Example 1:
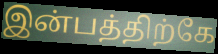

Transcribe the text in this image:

இன்பத்திற்கே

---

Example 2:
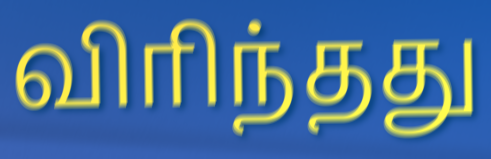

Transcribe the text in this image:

விரிந்தது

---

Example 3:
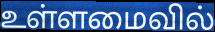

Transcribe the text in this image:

உள்ளமைவில்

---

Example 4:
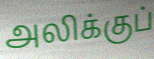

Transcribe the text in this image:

அலிக்குப்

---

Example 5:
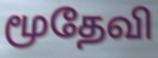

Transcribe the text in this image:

மூதேவி